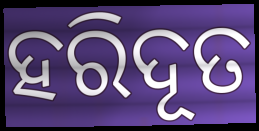
ହରିଦୂତ